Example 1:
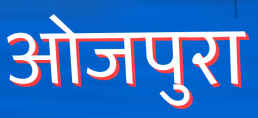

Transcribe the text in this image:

ओजपुरा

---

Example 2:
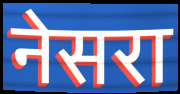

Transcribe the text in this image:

नेसरा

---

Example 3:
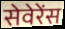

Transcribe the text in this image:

सेवेरेंस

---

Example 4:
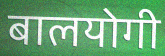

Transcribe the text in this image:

बालयोगी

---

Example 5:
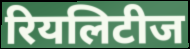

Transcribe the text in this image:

रियलिटीज